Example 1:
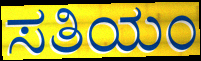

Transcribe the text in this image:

ಸತಿಯಂ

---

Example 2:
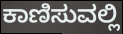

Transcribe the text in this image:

ಕಾಣಿಸುವಲ್ಲಿ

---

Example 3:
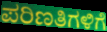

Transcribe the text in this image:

ಪರಿಣತಿಗಳಿಗೆ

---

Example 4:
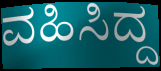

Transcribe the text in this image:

ವಹಿಸಿದ್ದ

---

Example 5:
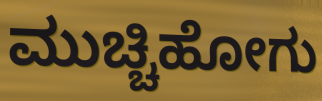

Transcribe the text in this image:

ಮುಚ್ಚಿಹೋಗು